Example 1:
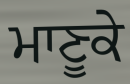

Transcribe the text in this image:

ਮਾਣੂਕੇ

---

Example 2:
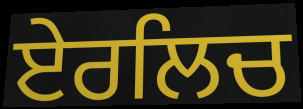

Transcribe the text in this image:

ਏਰਲਿਚ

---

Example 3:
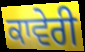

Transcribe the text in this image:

ਕਾਵੇਰੀ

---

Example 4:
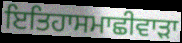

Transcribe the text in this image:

ਇਤਿਹਾਸਮਾਛੀਵਾੜਾ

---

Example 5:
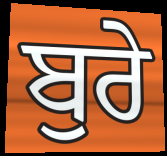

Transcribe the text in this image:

ਬੁਰੇ